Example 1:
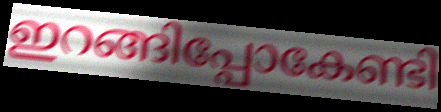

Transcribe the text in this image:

ഇറങ്ങിപ്പോകേണ്ടി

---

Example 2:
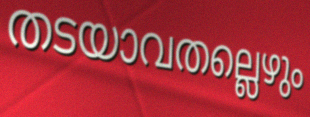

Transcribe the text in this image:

തടയാവതല്ലെഴും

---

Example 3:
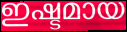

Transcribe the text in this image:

ഇഷ്ടമായ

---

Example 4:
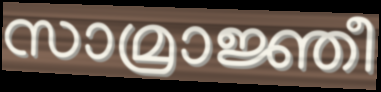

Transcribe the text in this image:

സാമ്രാജ്ഞീ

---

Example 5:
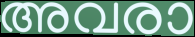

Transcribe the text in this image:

അവരാ